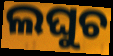
ଲଘୁଚ